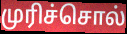
முரிச்சொல்